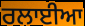
ਰਲਾਈਆ